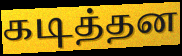
கடித்தன